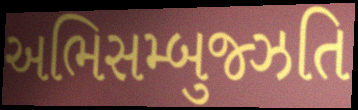
અભિસમ્બુજ્ઝતિ